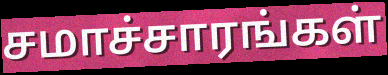
சமாச்சாரங்கள்